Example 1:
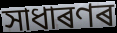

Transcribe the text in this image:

সাধাৰণৰ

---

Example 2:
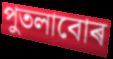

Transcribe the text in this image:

পুতলাবোৰ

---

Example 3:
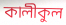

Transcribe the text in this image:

কালীকুল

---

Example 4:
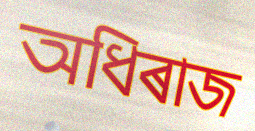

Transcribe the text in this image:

অধিৰাজ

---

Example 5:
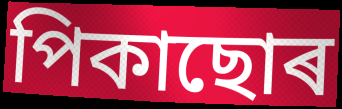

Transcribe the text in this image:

পিকাছোৰ